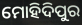
ମୋହିଦିପୁର